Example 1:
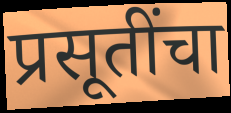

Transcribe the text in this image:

प्रसूतींचा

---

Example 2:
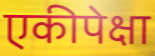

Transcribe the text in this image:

एकीपेक्षा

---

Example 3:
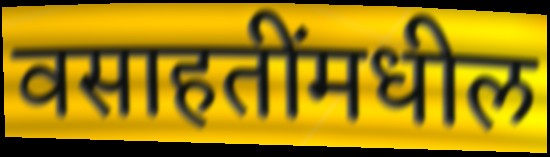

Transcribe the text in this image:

वसाहतींमधील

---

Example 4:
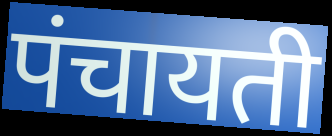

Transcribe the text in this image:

पंचायती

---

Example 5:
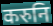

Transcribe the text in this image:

करुनि